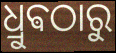
ଧ୍ରୁଵଠାରୁ